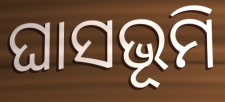
ଘାସଭୂମି